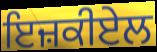
ਇਜ਼ਕੀਏਲ